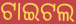
ଟାଇଟଲ